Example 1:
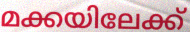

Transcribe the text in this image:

മക്കയിലേക്ക്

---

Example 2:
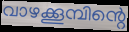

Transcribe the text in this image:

വാഴക്കൂമ്പിന്റെ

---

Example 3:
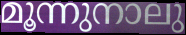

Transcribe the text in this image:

മൂന്നുനാലു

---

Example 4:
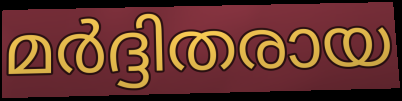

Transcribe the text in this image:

മർദ്ദിതരായ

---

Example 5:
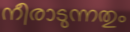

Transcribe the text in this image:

നീരാടുന്നതും